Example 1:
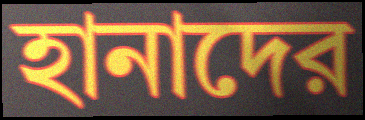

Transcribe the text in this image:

হানাদের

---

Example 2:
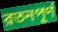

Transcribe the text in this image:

রতনপূর্ণ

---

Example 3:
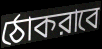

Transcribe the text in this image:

ঠোকরাবে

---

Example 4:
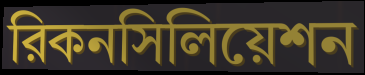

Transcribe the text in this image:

রিকনসিলিয়েশন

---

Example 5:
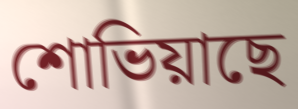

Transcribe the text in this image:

শোভিয়াছে